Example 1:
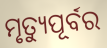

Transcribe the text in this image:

ମୃତ୍ୟୁପୂର୍ବର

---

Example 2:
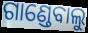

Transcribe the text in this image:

ଗାଣ୍ଡେବାଲୁ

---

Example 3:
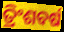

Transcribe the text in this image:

ତ୍ରିଂଶବର୍ଷ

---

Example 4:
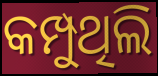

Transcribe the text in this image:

କମ୍ପୁଥିଲି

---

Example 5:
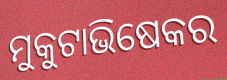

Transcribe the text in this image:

ମୁକୁଟାଭିଷେକର